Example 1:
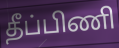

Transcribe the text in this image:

தீப்பிணி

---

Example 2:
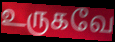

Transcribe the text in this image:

உருகவே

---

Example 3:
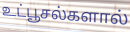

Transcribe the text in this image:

உட்பூசல்களால்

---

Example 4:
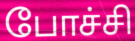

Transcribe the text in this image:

போச்சி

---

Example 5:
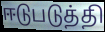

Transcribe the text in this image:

ஈடுபடுத்தி